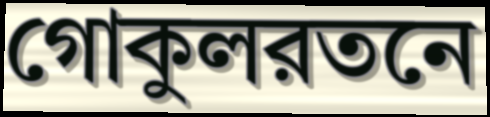
গোকুলরতনে